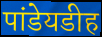
पांडेयडीह